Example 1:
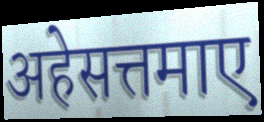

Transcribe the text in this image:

अहेसत्तमाए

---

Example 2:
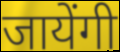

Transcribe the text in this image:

जायेंगी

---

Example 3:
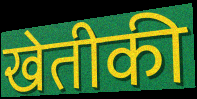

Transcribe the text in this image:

खेतीकी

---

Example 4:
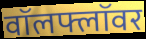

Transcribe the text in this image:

वॉलफ्लॉवर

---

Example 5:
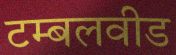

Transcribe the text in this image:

टम्बलवीड